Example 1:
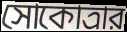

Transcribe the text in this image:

সোকোত্রার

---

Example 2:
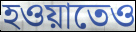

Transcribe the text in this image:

হওয়াতেও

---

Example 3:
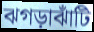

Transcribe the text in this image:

ঝগড়াঝাঁটি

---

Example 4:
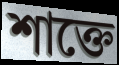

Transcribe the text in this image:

শাক্তে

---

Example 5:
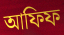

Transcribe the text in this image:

আফিফ